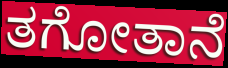
ತಗೋತಾನೆ